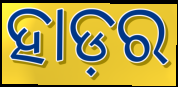
ହାଡ଼ର